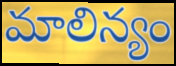
మాలిన్యం